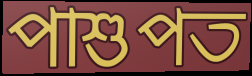
পাশুপত